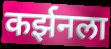
कर्झनला